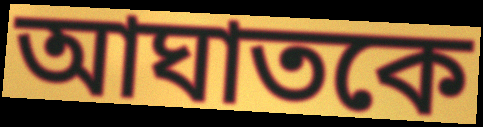
আঘাতকে